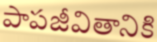
పాపజీవితానికి